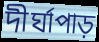
দীর্ঘাপাড়